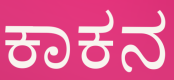
ಕಾಕನ